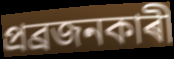
প্ৰব্ৰজনকাৰী